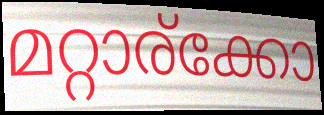
മറ്റാര്ക്കോ